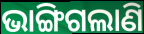
ଭାଙ୍ଗିଗଲାଣି